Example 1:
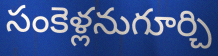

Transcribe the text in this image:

సంకెళ్లనుగూర్చి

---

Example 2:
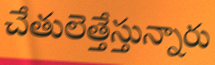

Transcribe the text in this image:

చేతులెత్తేస్తున్నారు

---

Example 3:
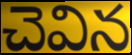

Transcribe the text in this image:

చెవిన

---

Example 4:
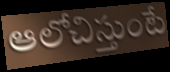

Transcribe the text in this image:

ఆలోచిస్తుంటే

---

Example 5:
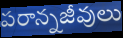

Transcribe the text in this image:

పరాన్నజీవులు